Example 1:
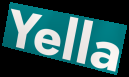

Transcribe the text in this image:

Yella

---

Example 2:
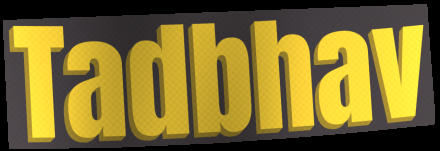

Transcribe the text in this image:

Tadbhav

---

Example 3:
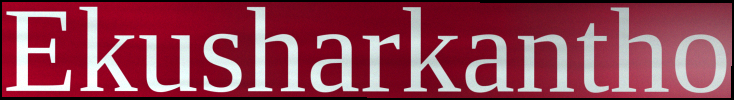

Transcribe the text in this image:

Ekusharkantho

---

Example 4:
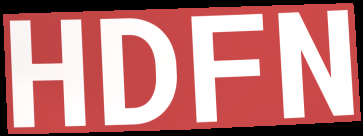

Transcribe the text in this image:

HDFN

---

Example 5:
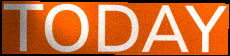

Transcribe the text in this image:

TODAY